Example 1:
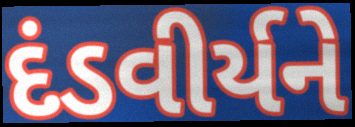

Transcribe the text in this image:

દંડવીર્યને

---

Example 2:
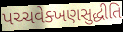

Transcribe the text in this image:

પચ્ચવેક્ખણસુદ્ધીતિ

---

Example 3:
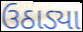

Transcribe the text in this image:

ઉઠાડ્યા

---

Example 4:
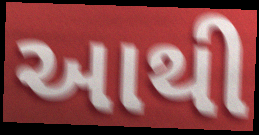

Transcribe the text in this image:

આથી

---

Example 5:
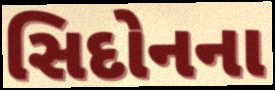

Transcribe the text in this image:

સિદોનના